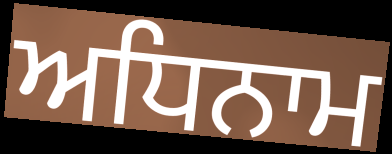
ਅਧਿਨਾਮ